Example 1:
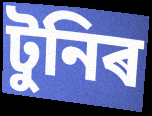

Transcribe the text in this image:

টুনিৰ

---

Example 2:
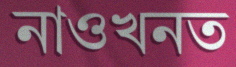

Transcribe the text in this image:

নাওখনত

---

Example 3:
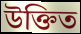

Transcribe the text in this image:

উক্তিত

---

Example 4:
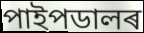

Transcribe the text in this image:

পাইপডালৰ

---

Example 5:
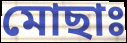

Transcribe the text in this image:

মোছাঃ